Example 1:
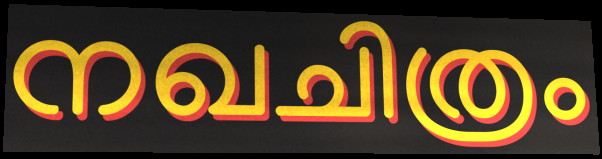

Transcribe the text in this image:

നഖചിത്രം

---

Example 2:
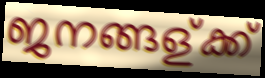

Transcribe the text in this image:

ജനങ്ങള്ക്ക്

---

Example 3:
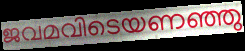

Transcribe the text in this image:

ജവമവിടെയണഞ്ഞു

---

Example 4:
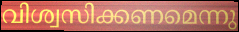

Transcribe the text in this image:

വിശ്വസിക്കണമെന്നു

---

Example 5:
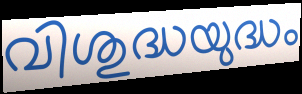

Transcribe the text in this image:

വിശുദ്ധയുദ്ധം